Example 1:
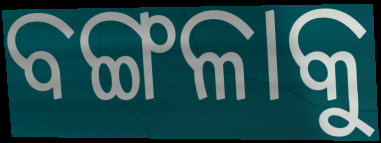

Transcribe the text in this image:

ବଙ୍ଗଳାକୁ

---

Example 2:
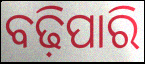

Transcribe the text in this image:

ବଢ଼ିପାରି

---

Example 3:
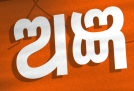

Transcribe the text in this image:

ଅଜ୍ଞ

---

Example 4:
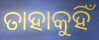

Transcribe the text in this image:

ତାହାକୁହିଁ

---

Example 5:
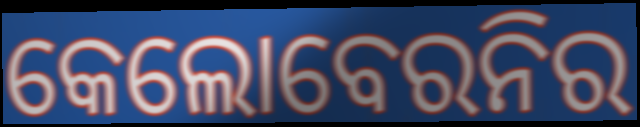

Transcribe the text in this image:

କେଲୋବେରନିର